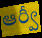
ఆర్వీ